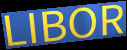
LIBOR